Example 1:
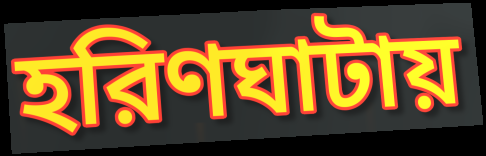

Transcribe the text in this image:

হরিণঘাটায়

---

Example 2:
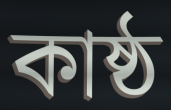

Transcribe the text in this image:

কাষ্ঠ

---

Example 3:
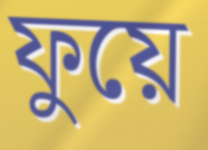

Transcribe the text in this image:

ফুয়ে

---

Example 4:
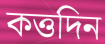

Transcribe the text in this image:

কত্তদিন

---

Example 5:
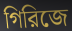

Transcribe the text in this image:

গিরিজে